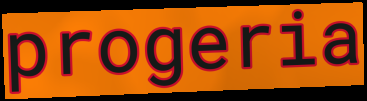
progeria